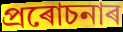
প্ৰৰোচনাৰ